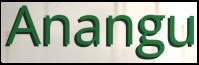
Anangu